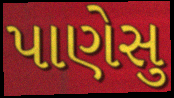
પાણેસુ